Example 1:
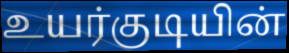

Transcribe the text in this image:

உயர்குடியின்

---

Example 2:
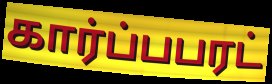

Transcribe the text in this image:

கார்ப்பபரட்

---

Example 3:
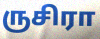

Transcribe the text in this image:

ருசிரா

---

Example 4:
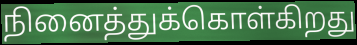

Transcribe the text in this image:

நினைத்துக்கொள்கிறது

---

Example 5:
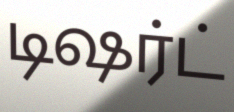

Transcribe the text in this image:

டிஷர்ட்